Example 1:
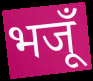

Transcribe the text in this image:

भजूँ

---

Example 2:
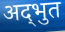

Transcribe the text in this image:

अद्‌भुत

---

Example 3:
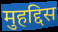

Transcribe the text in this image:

मुहद्दिस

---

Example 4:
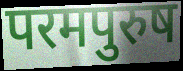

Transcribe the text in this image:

परमपुरुष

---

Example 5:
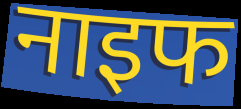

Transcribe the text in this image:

नाइफ